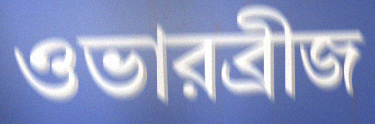
ওভারব্রীজ